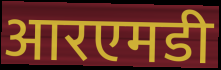
आरएमडी